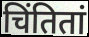
चिंतितां